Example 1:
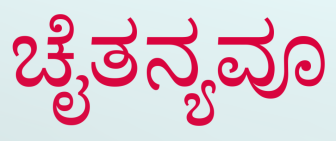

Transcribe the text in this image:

ಚೈತನ್ಯವೂ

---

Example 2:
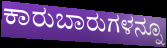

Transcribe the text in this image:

ಕಾರುಬಾರುಗಳನ್ನೂ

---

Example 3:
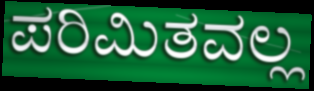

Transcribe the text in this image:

ಪರಿಮಿತವಲ್ಲ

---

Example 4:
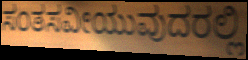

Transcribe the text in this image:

ಸಂತಸವೀಯುವುದರಲ್ಲಿ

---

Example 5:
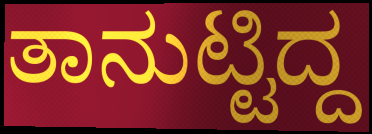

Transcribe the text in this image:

ತಾನುಟ್ಟಿದ್ದ